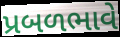
પ્રબળભાવે